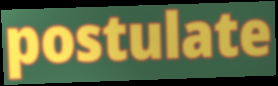
postulate